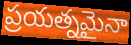
ప్రయత్నమైనా